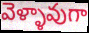
వెళ్ళావుగా